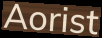
Aorist